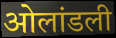
ओलांडली